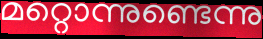
മറ്റൊന്നുണ്ടെന്നു